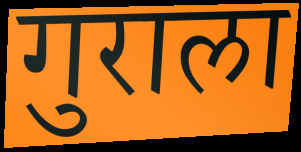
गुराला